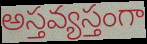
అస్తవ్యస్తంగా